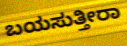
ಬಯಸುತ್ತೀರಾ